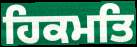
ਹਿਕਮਤਿ